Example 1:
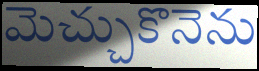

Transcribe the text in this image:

మెచ్చుకొనెను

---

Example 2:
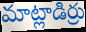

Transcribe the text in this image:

మాట్లాడిర్రు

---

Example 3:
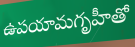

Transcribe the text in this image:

ఉపయామగృహీతో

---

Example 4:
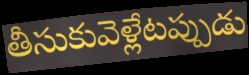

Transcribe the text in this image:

తీసుకువెళ్లేటప్పుడు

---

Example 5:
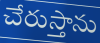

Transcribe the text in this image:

చేరుస్తాను